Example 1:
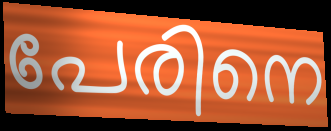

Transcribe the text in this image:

പേരിനെ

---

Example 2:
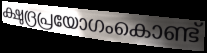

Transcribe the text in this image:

ക്ഷുദ്രപ്രയോഗംകൊണ്ട്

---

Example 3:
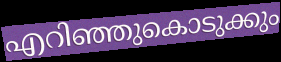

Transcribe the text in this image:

എറിഞ്ഞുകൊടുക്കും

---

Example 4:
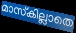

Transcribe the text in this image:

മാസ്‌കില്ലാതെ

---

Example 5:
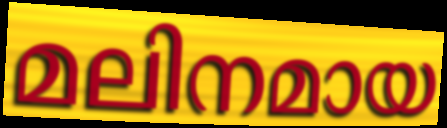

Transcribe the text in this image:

മലിനമായ